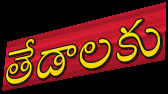
తేడాలకు